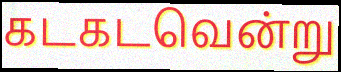
கடகடவென்று